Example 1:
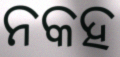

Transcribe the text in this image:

ନକହ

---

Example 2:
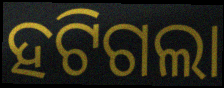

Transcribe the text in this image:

ହଟିଗଲା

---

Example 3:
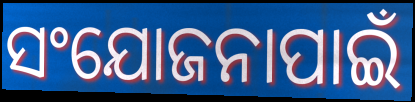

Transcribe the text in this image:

ସଂଯୋଜନାପାଇଁ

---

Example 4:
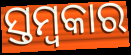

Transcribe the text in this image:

ସ୍ତମ୍ବକାର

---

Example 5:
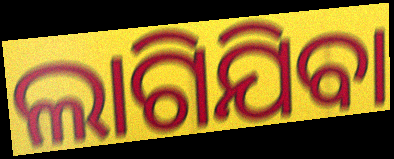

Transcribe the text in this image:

ଲାଗିଯିବା